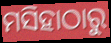
ମସିହାଠାରୁ